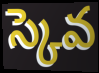
స్కెవ